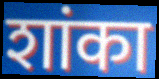
शांका